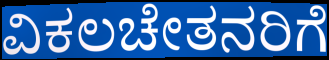
ವಿಕಲಚೇತನರಿಗೆ